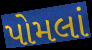
પોમલાં